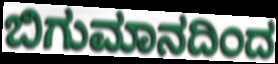
ಬಿಗುಮಾನದಿಂದ